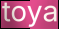
toya